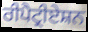
ਰੀਪੈਟ੍ਰੀਏਸ਼ਨ